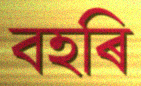
বহৰি